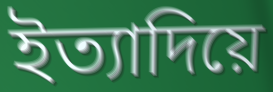
ইত্যাদিয়ে